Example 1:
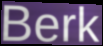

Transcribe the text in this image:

Berk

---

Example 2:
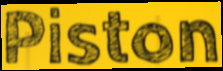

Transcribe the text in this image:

Piston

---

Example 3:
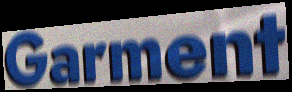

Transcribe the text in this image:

Garment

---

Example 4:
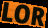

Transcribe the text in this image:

LOR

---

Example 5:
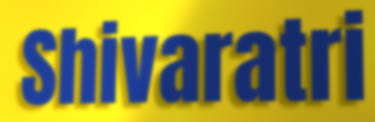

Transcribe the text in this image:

Shivaratri